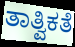
ತಾತ್ವಿಕತೆ